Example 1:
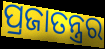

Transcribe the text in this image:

ପ୍ରଜାତନ୍ତ୍ରର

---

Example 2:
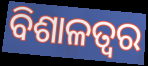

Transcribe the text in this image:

ବିଶାଳତ୍ୱର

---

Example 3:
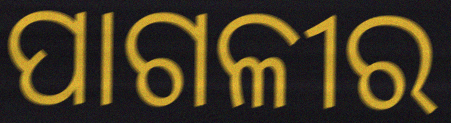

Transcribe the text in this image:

ପାଗଳୀର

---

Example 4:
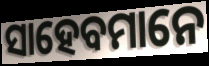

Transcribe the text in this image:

ସାହେବମାନେ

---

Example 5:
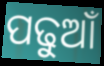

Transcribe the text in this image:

ପଢୁଆଁ